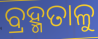
ବ୍ରହ୍ମତାଳୁ